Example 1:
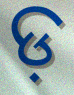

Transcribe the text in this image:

ଡ଼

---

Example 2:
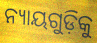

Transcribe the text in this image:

ନ୍ୟାୟଗୁଡ଼ିକୁ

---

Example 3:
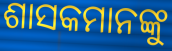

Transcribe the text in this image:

ଶାସକମାନଙ୍କୁ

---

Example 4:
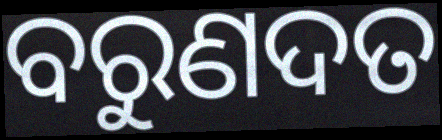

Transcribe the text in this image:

ବରୁଣଦତ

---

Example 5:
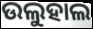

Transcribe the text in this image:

ଉଲୁହାଲ